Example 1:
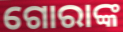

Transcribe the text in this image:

ଗୋରାଙ୍କ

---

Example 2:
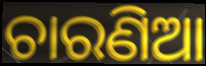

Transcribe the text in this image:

ଚାରଣିଆ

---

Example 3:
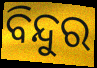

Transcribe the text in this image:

ବିନ୍ଦୁର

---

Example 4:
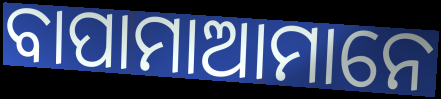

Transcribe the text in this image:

ବାପାମାଆମାନେ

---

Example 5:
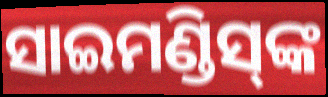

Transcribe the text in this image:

ସାଇମଣ୍ଡିସ୍‍ଙ୍କ